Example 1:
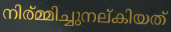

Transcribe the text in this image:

നിര്മ്മിച്ചുനല്കിയത്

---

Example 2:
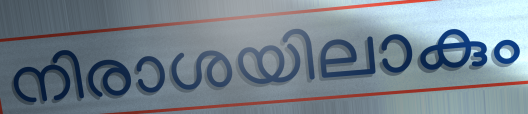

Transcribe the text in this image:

നിരാശയിലാകും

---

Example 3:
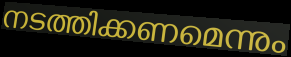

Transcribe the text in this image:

നടത്തിക്കണമെന്നും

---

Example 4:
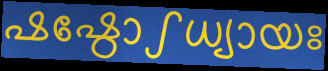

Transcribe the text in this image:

ഷഷ്ഠോഽധ്യായഃ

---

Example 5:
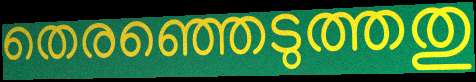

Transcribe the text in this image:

തെരഞ്ഞെടുത്തതു